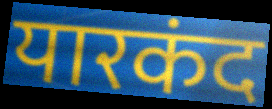
यारकंद